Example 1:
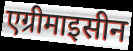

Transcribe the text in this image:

एग्रीमाइसीन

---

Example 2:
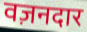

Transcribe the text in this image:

वज़नदार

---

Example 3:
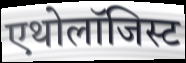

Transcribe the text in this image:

एथोलॉजिस्ट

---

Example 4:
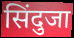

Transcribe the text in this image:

सिंदुजा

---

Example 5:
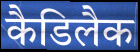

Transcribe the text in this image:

कैडिलैक